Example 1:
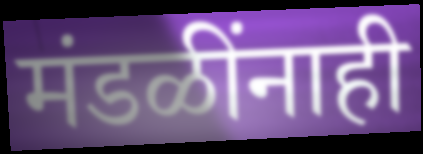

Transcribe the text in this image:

मंडळींनाही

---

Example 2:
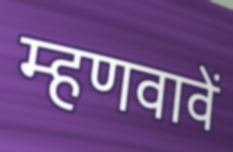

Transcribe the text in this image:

म्हणवावें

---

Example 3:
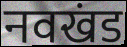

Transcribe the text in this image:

नवखंड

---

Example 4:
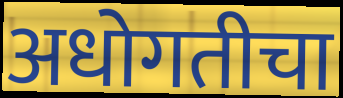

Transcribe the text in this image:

अधोगतीचा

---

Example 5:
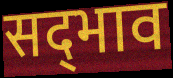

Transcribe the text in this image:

सद्‍भाव